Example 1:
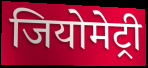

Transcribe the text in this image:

जियोमेट्री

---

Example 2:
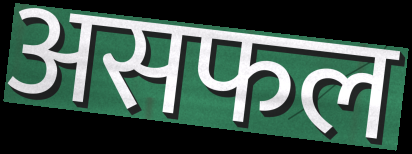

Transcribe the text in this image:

असफल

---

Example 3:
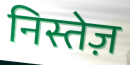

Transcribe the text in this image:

निस्तेज़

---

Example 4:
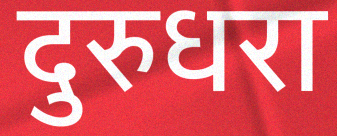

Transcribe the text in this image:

दुरुधरा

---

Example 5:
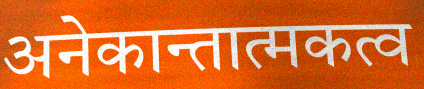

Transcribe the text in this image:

अनेकान्तात्मकत्व